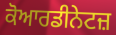
ਕੋਆਰਡੀਨੇਟਜ਼